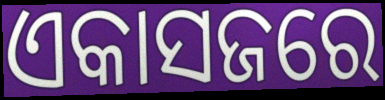
ଏକାସଜରେ